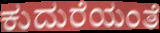
ಕುದುರೆಯಂತೆ